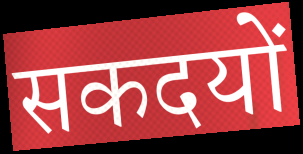
सकदयों